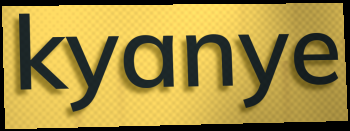
kyanye